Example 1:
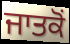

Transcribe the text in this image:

ਜਾਤਕੋਂ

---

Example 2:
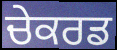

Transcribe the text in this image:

ਚੇਕਰਡ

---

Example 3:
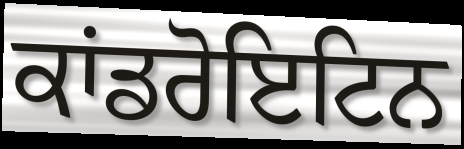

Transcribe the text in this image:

ਕਾਂਡਰੋਇਟਿਨ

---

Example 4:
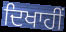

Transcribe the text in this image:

ਦਿਖਾਹੀਂ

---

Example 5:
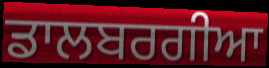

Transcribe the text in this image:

ਡਾਲਬਰਗੀਆ